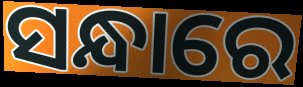
ସନ୍ଧାରେ